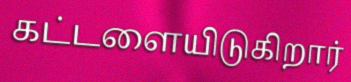
கட்டளையிடுகிறார்